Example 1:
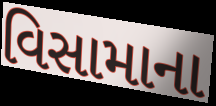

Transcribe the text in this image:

વિસામાના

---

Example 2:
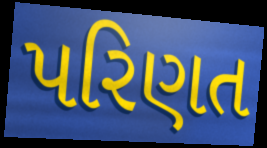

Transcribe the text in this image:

પરિણત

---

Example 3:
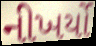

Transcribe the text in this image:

નીખર્યો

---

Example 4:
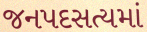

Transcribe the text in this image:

જનપદસત્યમાં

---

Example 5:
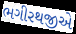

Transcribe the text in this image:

ભગીરથજીએ